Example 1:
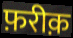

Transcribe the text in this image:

फ़रीक़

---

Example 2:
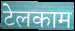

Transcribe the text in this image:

टेलकाम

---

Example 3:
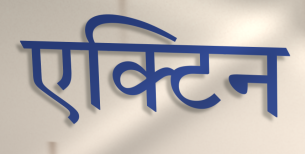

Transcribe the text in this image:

एक्टिन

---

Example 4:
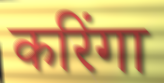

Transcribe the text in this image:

करिंगा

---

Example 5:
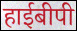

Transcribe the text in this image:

हाईबीपी